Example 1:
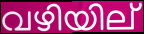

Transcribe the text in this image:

വഴിയില്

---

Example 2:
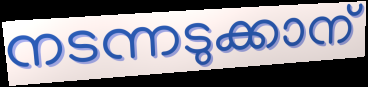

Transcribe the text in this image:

നടന്നടുക്കാന്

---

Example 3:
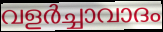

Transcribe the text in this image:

വളർച്ചാവാദം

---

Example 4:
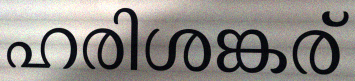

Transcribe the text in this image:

ഹരിശങ്കര്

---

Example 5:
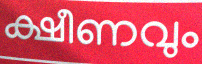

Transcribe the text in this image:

ക്ഷീണവും